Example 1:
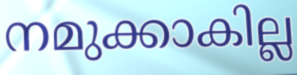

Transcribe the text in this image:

നമുക്കാകില്ല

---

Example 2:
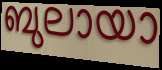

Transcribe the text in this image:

ബുലായാ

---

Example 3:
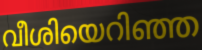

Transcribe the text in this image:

വീശിയെറിഞ്ഞ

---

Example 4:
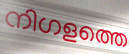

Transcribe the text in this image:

നിഗളത്തെ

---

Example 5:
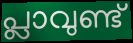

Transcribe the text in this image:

പ്ലാവുണ്ട്